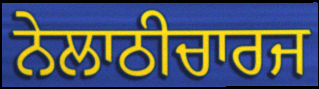
ਨੇਲਾਠੀਚਾਰਜ